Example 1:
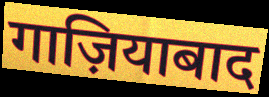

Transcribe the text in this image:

गाज़ियाबाद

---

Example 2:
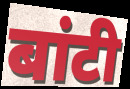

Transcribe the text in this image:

बांटी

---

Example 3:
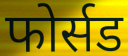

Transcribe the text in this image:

फोर्सड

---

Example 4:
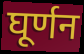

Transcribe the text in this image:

घूर्णन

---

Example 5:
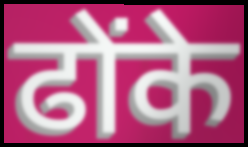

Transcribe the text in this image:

ढोंके